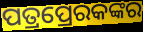
ପତ୍ରପ୍ରେରକଙ୍କର